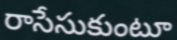
రాసేసుకుంటూ